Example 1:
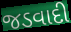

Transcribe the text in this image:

જડવાદી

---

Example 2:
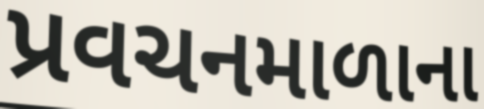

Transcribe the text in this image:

પ્રવચનમાળાના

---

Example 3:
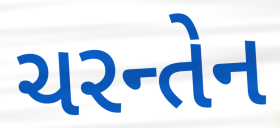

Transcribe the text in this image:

ચરન્તેન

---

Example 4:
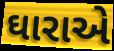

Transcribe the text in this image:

ઘારાએ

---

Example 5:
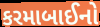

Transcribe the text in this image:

કરમાબાઈનો